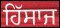
ਹਿੱਸਾਜ